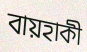
বায়হাকী